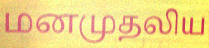
மனமுதலிய